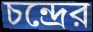
চন্দ্রের